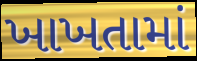
ખાખતામાં